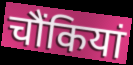
चौंकियां